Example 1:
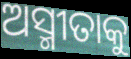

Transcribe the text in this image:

ଅସ୍ମୀତାକୁ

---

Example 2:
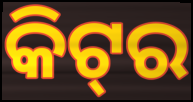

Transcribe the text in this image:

କିଟ୍‌ର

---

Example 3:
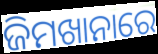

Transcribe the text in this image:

ଜିମଖାନାରେ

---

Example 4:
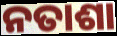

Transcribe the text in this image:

ନତାଶା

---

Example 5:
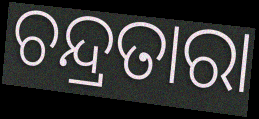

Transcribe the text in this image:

ଚନ୍ଦ୍ରତାରା